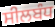
ਸੀਲਬੰਧ